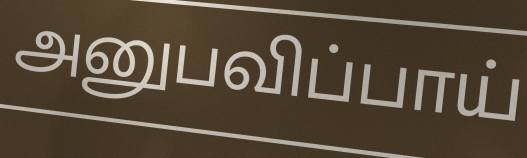
அனுபவிப்பாய்